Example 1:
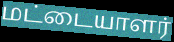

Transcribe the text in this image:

மட்டையாளர்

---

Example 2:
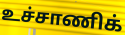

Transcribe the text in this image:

உச்சாணிக்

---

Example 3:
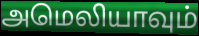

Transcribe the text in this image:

அமெலியாவும்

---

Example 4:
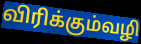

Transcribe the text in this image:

விரிக்கும்வழி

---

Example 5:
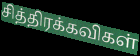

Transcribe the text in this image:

சித்திரக்கவிகள்